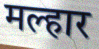
मल्हार